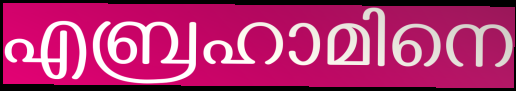
എബ്രഹാമിനെ